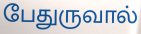
பேதுருவால்